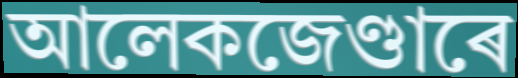
আলেকজেণ্ডাৰে